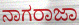
ನಾಗರಾಜಾ